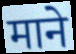
माने